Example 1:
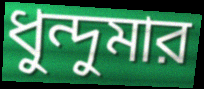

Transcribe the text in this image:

ধুন্দুমার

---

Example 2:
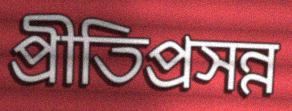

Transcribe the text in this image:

প্রীতিপ্রসন্ন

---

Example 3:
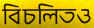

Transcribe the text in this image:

বিচলিতও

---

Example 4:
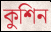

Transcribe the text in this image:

কুশিন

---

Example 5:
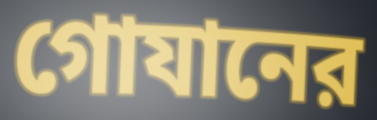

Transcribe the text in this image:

গোযানের